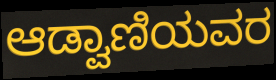
ಆಡ್ವಾಣಿಯವರ